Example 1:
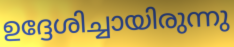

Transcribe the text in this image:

ഉദ്ദേശിച്ചായിരുന്നു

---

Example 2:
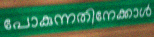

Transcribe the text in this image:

പോകുന്നതിനേക്കാൾ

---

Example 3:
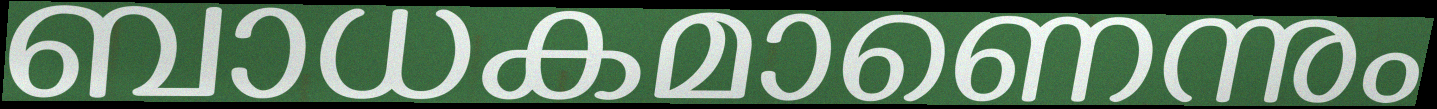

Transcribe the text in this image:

ബാധകമാണെന്നും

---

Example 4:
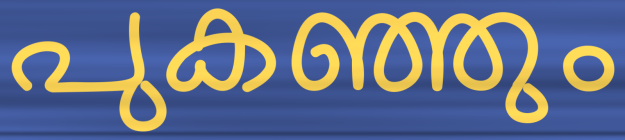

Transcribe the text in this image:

പുകഞ്ഞും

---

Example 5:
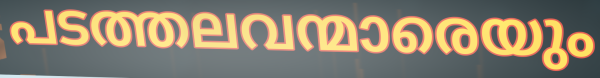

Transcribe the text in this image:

പടത്തലവന്മാരെയും